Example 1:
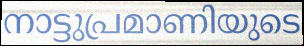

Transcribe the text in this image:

നാട്ടുപ്രമാണിയുടെ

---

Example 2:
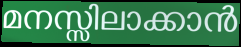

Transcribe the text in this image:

മനസ്സിലാക്കാൻ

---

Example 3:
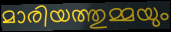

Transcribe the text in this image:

മാരിയത്തുമ്മയും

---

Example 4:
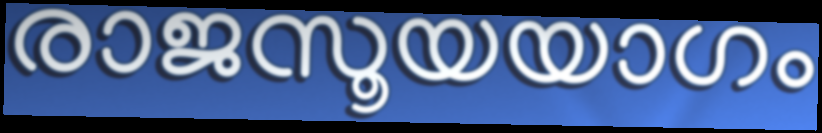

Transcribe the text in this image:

രാജസൂയയാഗം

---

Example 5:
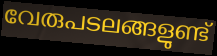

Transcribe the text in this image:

വേരുപടലങ്ങളുണ്ട്